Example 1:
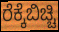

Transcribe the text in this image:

ರೆಕ್ಕೆಬಿಚ್ಚಿ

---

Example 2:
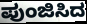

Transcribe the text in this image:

ಪುಂಜಿಸಿದ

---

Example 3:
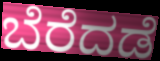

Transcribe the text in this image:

ಬೆರೆದಡೆ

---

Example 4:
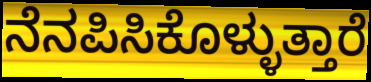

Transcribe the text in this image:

ನೆನಪಿಸಿಕೊಳ್ಳುತ್ತಾರೆ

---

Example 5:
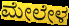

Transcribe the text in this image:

ಮೇಲೇಳ